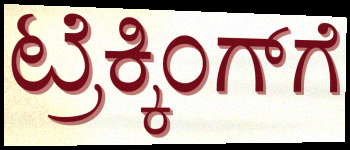
ಟ್ರೆಕ್ಕಿಂಗ್‌ಗೆ